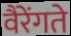
वैरेंगते